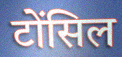
टोंसिल